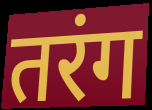
तरंग